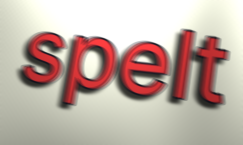
spelt